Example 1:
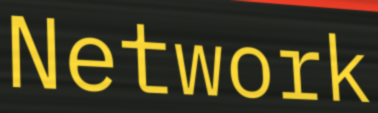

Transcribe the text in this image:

Network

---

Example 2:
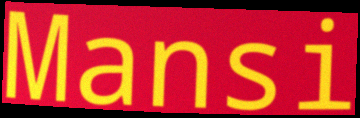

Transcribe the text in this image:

Mansi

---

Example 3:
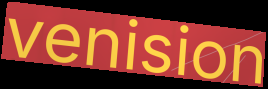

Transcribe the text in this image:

venision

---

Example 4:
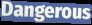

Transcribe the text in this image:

Dangerous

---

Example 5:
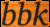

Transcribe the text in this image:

bbk